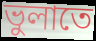
ভুলাতে